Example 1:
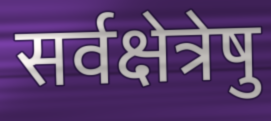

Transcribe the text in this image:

सर्वक्षेत्रेषु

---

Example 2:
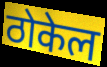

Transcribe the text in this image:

ठोकेल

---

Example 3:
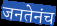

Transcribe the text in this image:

जनतेनंच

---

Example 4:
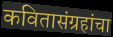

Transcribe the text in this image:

कवितासंग्रहांचा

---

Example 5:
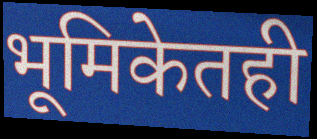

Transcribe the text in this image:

भूमिकेतही